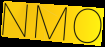
NMO